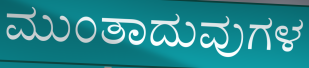
ಮುಂತಾದುವುಗಳ